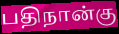
பதிநான்கு